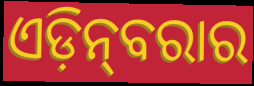
ଏଡ଼ିନ୍‍ବରାର